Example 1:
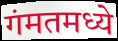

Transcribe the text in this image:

गंमतमध्ये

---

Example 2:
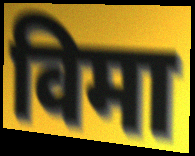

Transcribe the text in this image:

विमा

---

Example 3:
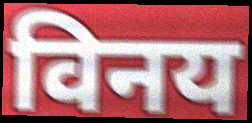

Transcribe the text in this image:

विनय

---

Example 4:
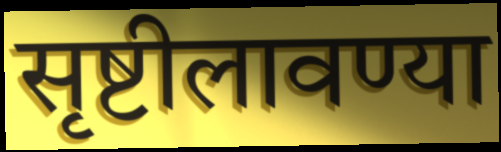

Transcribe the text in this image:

सृष्टीलावण्या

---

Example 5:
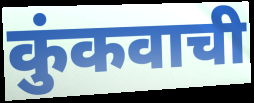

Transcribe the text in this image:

कुंकवाची